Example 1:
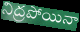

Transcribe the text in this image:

నిద్రపోయినా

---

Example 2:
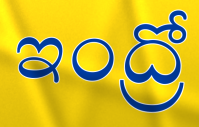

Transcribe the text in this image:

ఇంద్రో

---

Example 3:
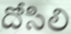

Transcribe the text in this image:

దోసిలి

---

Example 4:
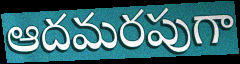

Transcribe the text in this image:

ఆదమరపుగా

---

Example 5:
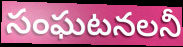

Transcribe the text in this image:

సంఘటనలనీ